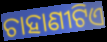
ଚାହାଣୀଟିଏ